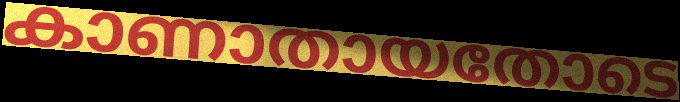
കാണാതായതോടെ